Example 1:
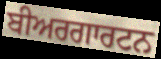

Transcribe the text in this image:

ਬੀਅਰਗਾਰਟਨ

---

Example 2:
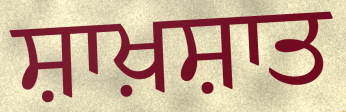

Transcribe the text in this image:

ਸ਼ਾਖ਼ਸ਼ਾਤ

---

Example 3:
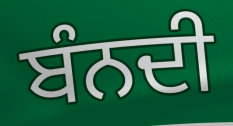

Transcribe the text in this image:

ਬੰਨਦੀ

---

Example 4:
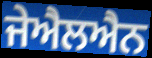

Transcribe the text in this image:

ਜੇਐਲਐਨ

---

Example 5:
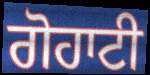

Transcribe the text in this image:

ਗੋਹਾਟੀ